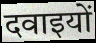
दवाइयों